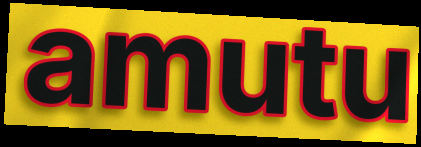
amutu